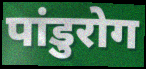
पांडुरोग